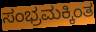
ಸಂಭ್ರಮಕ್ಕಿಂತ